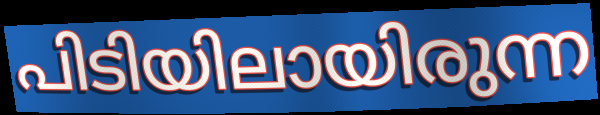
പിടിയിലായിരുന്ന